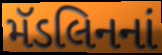
મૅડલિનનાં